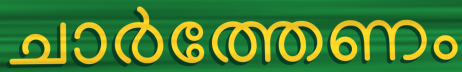
ചാർത്തേണം